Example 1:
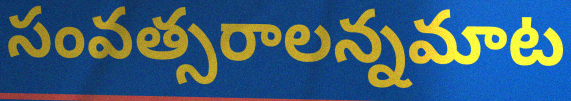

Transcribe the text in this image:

సంవత్సరాలన్నమాట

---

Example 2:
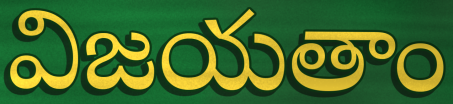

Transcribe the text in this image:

విజయతాం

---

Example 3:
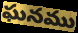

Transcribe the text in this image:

ఘనము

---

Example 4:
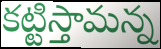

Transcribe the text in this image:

కట్టిస్తామన్న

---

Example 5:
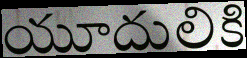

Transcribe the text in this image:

యూదులికి